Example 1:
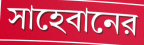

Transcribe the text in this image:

সাহেবানের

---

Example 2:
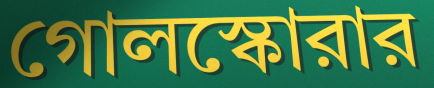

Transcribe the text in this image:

গোলস্কোরার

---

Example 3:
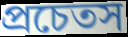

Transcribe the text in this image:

প্রচেতস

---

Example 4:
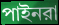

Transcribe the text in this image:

পাইনরা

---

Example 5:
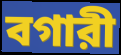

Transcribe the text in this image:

বগারী